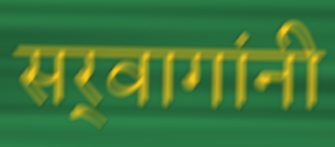
सर्वागांनी